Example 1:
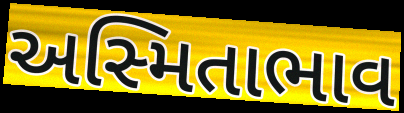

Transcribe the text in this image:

અસ્મિતાભાવ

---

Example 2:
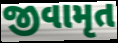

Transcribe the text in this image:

જીવામૃત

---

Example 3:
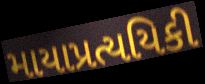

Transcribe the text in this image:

માયાપ્રત્યયિકી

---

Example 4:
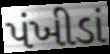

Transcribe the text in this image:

પંખીડાં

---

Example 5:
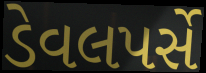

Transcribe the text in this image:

ડેવલપર્સે